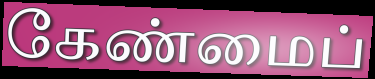
கேண்மைப்